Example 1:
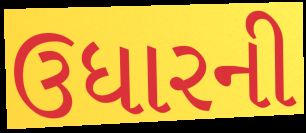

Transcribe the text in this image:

ઉધારની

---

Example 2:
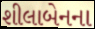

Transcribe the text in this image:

શીલાબેનના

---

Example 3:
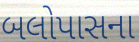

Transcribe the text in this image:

બલોપાસના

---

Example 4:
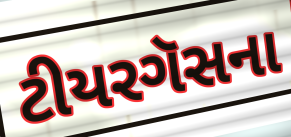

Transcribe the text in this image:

ટીયરગૅસના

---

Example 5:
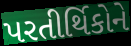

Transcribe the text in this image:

પરતીર્થિકોને